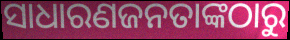
ସାଧାରଣଜନତାଙ୍କଠାରୁ